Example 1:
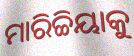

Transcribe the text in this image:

ମାରିଚ୍ଚିୟାକୁ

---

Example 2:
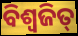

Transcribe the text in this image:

ବିଶ୍ୱଜିତ୍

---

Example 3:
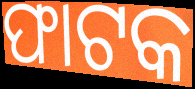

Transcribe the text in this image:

ଫାଟକ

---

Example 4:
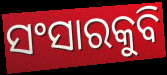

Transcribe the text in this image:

ସଂସାରକୁବି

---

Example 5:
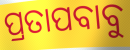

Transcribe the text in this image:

ପ୍ରତାପବାବୁ